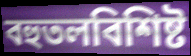
বহুতলবিশিষ্ট